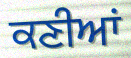
ਕਣੀਆਂ